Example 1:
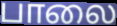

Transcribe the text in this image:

பாலை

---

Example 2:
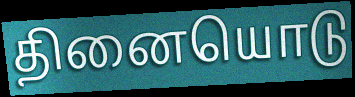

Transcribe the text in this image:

தினையொடு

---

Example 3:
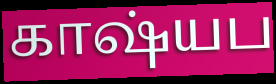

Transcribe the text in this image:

காஷ்யப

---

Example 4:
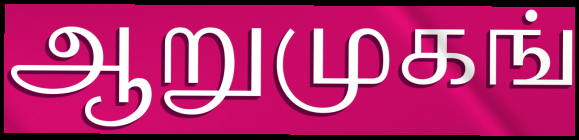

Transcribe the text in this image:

ஆறுமுகங்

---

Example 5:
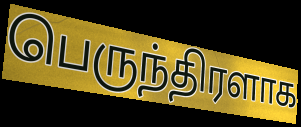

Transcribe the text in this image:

பெருந்திரளாக